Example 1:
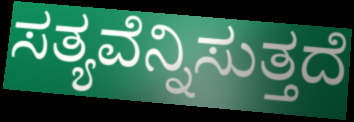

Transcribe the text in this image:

ಸತ್ಯವೆನ್ನಿಸುತ್ತದೆ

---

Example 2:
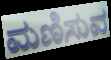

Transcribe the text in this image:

ಮಣಿಸುವ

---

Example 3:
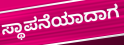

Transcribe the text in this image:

ಸ್ಥಾಪನೆಯಾದಾಗ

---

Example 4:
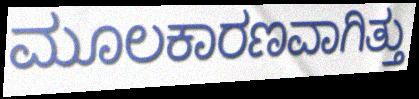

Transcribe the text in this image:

ಮೂಲಕಾರಣವಾಗಿತ್ತು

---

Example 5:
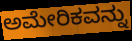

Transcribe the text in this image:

ಅಮೇರಿಕವನ್ನು